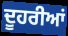
ਦੂਹਰੀਆਂ